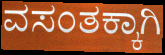
ವಸಂತಕ್ಕಾಗಿ